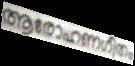
ആരോഹണഗീതം